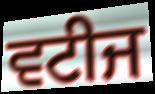
ਵਟੀਜ